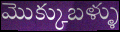
మొక్కుబళ్ళు